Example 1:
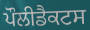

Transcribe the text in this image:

ਪੌਲੀਡੈਕਟਸ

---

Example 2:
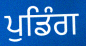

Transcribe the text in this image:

ਪੁਡਿੰਗ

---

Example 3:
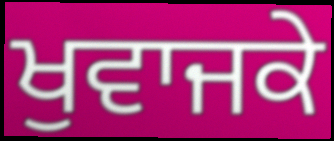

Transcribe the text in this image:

ਖੁਵਾਜਕੇ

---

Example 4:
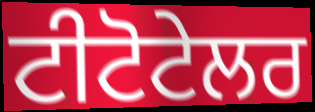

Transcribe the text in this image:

ਟੀਟੋਟੇਲਰ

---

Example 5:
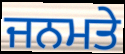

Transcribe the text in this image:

ਜਨਮਤੇ